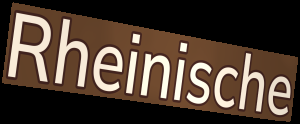
Rheinische